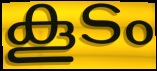
കൂടം